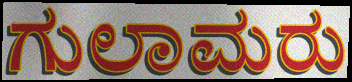
ಗುಲಾಮರು